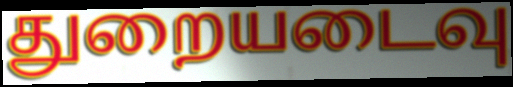
துறையடைவு